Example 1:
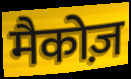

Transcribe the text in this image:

मैकोज़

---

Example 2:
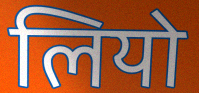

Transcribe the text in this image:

लियो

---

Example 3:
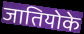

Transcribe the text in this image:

जातियोके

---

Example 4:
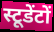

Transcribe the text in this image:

स्टूडेंटों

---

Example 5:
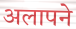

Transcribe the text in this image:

अलापने